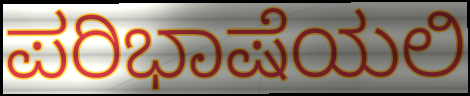
ಪರಿಭಾಷೆಯಲಿ